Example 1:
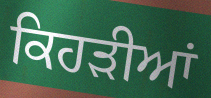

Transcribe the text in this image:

ਕਿਹੜੀਆਂ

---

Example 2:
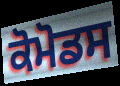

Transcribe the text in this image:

ਕੋਮੋਡਸ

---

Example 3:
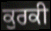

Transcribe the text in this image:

ਕੁਰਕੀ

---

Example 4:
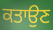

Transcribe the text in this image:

ਕਤਾਉਣ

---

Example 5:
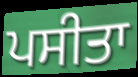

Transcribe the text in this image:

ਪਸੀਤਾ